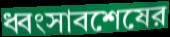
ধ্বংসাবশেষের